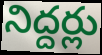
నిద్దర్లు